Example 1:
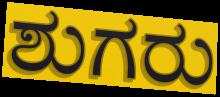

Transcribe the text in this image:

ಶುಗರು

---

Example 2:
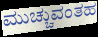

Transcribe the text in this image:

ಮುಚ್ಚುವಂತಹ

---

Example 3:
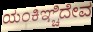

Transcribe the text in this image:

ಯಂಕಿಞ್ಚಿದೇವ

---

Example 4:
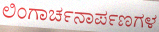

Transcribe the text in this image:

ಲಿಂಗಾರ್ಚನಾರ್ಪಣಗಳ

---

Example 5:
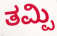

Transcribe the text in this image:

ತಮ್ಪಿ